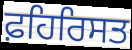
ਫ਼ਹਿਰਿਸਤ